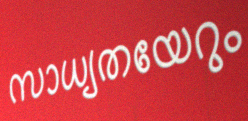
സാധ്യതയേറും